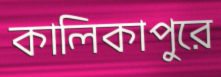
কালিকাপুরে